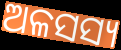
ଅଳସସ୍ୟ